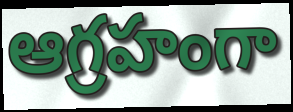
ఆగ్రహంగా